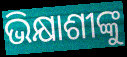
ଭିକ୍ଷାଶୀଙ୍କୁ